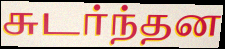
சுடர்ந்தன